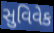
સુવિવેક